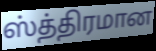
ஸ்த்திரமான